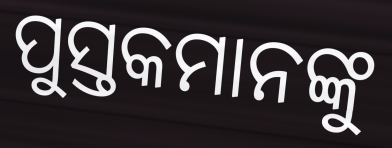
ପୁସ୍ତକମାନଙ୍କୁ